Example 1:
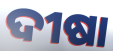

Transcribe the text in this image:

ଦୀଷା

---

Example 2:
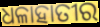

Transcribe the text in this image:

ଧଳାହାତୀର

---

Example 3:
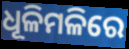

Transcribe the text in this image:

ଧୂଳିମଳିରେ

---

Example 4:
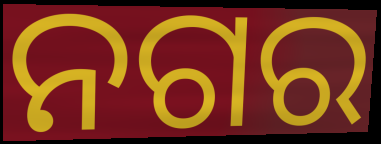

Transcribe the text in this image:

ନଗର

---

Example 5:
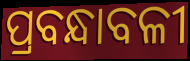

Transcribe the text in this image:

ପ୍ରବନ୍ଧାବଳୀ